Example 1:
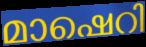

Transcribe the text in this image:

മാഷെറി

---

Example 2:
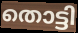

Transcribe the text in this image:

തൊട്ടി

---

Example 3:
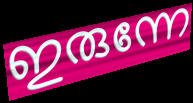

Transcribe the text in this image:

ഇരുന്നേ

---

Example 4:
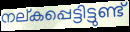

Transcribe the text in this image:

നല്കപ്പെട്ടിട്ടുണ്ട്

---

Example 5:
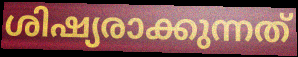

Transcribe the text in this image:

ശിഷ്യരാക്കുന്നത്